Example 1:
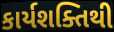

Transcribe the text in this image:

કાર્યશક્તિથી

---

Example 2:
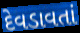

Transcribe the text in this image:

દેવડાવતાં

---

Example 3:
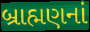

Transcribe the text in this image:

બ્રાહ્મણનાં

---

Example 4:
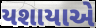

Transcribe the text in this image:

યશાયાએ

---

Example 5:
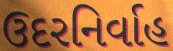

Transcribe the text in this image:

ઉદરનિર્વાહ